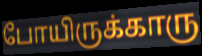
போயிருக்காரு